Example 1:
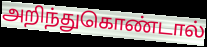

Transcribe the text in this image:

அறிந்துகொண்டால்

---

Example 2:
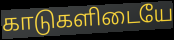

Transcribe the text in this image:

காடுகளிடையே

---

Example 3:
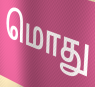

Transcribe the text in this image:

மொது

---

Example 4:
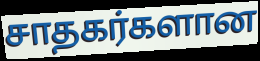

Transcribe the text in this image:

சாதகர்களான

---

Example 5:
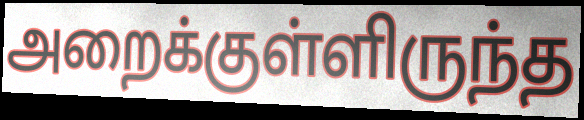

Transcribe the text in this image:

அறைக்குள்ளிருந்த